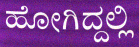
ಹೋಗಿದ್ದಲ್ಲಿ